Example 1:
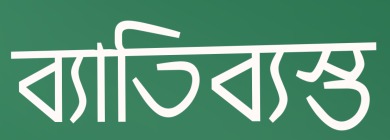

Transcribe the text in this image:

ব্যাতিব্যস্ত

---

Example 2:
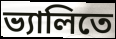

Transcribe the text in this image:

ভ্যালিতে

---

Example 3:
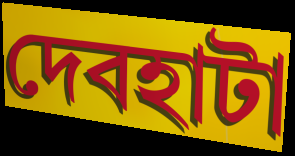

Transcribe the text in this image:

দেবহাটা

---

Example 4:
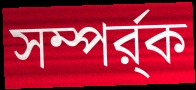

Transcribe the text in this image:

সম্পর্র্ক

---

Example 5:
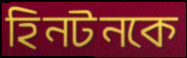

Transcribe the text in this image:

হিনটনকে